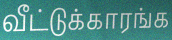
வீட்டுக்காரங்க